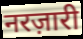
नरज़ारी